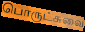
பொருட்சுவை